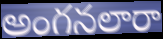
అంగనలారా